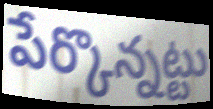
పేర్కొన్నట్టు